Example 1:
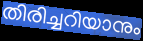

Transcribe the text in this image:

തിരിച്ചറിയാനും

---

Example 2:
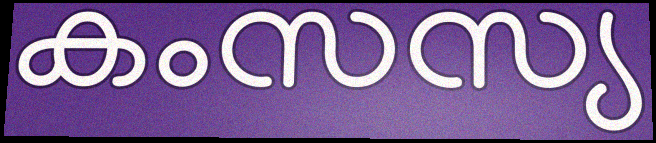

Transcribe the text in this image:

കംസസ്യ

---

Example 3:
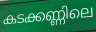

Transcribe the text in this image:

കടക്കണ്ണിലെ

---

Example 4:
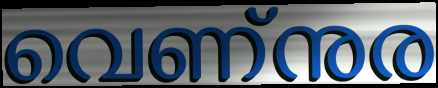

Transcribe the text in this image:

വെണ്നുര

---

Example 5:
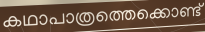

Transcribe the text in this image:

കഥാപാത്രത്തെക്കൊണ്ട്